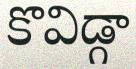
కొవిడ్గా